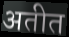
अतीत